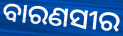
ବାରଣସୀର